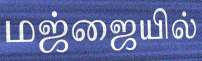
மஜ்ஜையில்